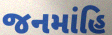
જનમાંહિ